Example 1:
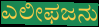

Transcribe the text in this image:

ಎಲೀಫಜನು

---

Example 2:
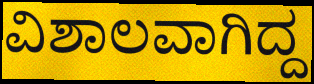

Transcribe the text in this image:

ವಿಶಾಲವಾಗಿದ್ದ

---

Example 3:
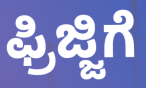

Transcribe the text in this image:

ಫ್ರಿಜ್ಜಿಗೆ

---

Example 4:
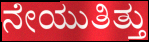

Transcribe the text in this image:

ನೇಯುತಿತ್ತು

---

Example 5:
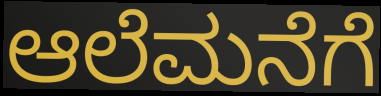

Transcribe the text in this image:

ಆಲೆಮನೆಗೆ